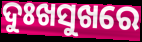
ଦୁଃଖସୁଖରେ